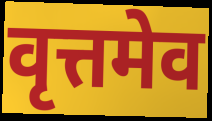
वृत्तमेव